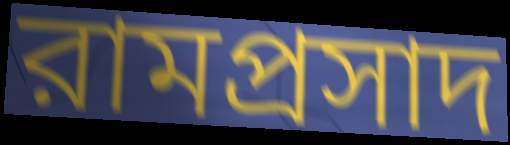
রামপ্রসাদ